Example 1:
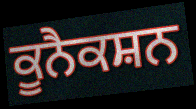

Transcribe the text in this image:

ਕੂਨੈਕਸ਼ਨ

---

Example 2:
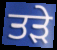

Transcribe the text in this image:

ਤੜੇ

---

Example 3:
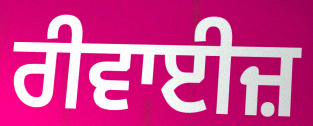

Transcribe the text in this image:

ਰੀਵਾਈਜ਼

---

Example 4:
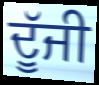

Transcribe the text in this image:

ਦੂੱਜੀ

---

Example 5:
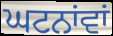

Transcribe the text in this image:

ਘਟਨਾਂਵਾਂ